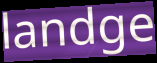
landge